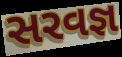
સરવજ્ઞ